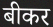
बीकर